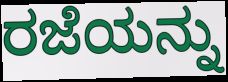
ರಜೆಯನ್ನು